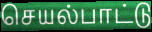
செயல்பாட்டு